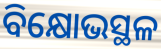
ବିକ୍ଷୋଭସ୍ଥଳ